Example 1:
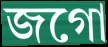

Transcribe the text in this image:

জগো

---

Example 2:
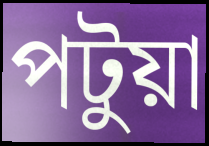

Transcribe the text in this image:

পটুয়া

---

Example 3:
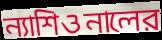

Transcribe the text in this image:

ন্যাশিওনালের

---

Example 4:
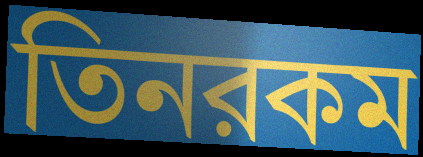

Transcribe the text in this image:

তিনরকম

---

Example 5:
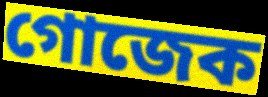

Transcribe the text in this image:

গোজেক